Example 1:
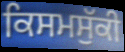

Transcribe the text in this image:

ਕਿਸਮਸੁੱਕੀ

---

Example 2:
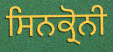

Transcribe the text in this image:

ਸਿਨਕ੍ਰੋਨੀ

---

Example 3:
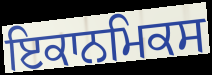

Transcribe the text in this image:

ਇਕਾਨਮਿਕਸ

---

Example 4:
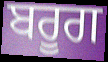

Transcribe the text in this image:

ਬਰੂਗ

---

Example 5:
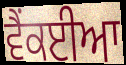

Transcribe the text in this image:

ਵੈਂਕਈਆ